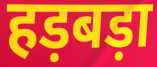
हड़बड़ा